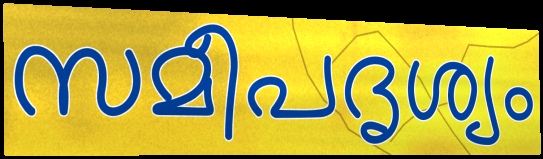
സമീപദൃശ്യം